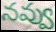
నవ్వు